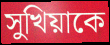
সুখিয়াকে